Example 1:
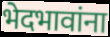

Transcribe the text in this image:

भेदभावांना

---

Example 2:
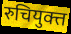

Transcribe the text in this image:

रुचियुक्त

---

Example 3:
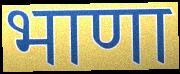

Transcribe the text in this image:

भाणा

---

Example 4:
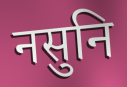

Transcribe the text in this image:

नसुनि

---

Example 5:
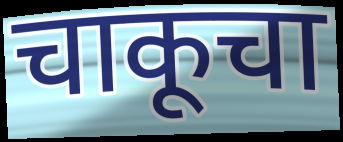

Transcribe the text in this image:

चाकूचा